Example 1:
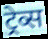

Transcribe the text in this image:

ट्रेव्स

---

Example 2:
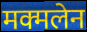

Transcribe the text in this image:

मक्मलेन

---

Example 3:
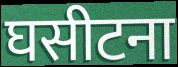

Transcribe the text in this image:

घसीटना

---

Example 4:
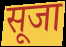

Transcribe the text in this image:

सूजा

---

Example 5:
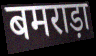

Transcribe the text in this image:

बमराड़ा